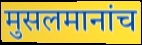
मुसलमानांच